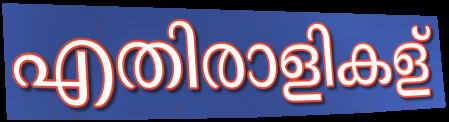
എതിരാളികള്